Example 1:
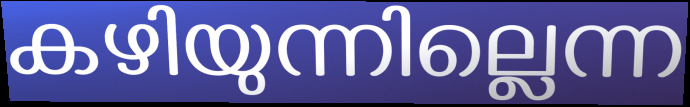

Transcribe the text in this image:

കഴിയുന്നില്ലെന്ന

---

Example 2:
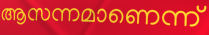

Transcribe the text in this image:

ആസന്നമാണെന്ന്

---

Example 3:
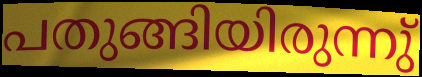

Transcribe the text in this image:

പതുങ്ങിയിരുന്നു്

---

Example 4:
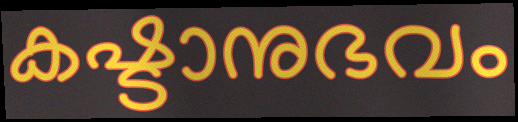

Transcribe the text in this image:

കഷ്ടാനുഭവം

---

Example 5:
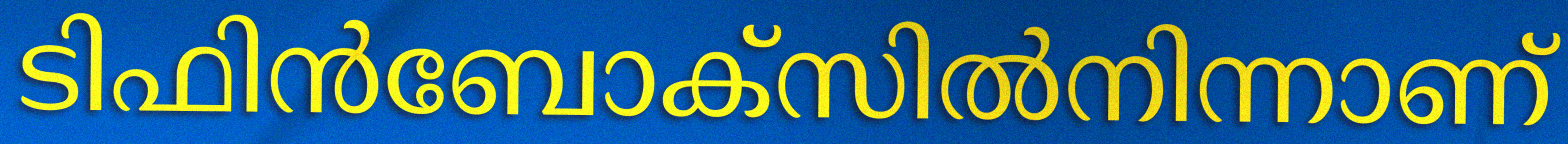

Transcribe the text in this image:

ടിഫിൻബോക്സിൽനിന്നാണ്